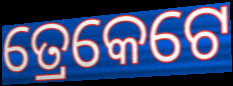
ତ୍ରେକେଟେ